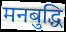
मनबुद्धि